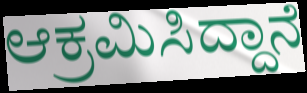
ಆಕ್ರಮಿಸಿದ್ದಾನೆ